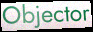
Objector